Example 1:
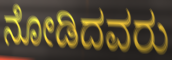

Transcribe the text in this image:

ನೋಡಿದವರು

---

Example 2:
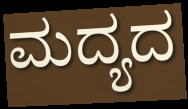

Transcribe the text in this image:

ಮದ್ಯದ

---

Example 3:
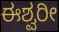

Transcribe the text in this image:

ಈಶ್ವರೀ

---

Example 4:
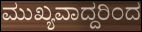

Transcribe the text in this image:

ಮುಖ್ಯವಾದ್ದರಿಂದ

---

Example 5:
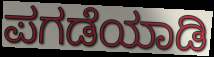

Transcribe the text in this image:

ಪಗಡೆಯಾಡಿ